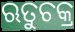
ଋତୁଚକ୍ର